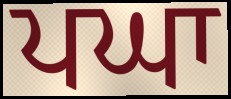
ਪਘਾ